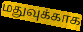
மதுவுக்காக